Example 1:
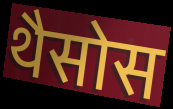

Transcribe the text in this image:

थैसोस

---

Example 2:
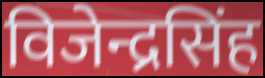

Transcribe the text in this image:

विजेन्द्रसिंह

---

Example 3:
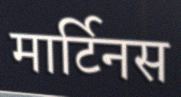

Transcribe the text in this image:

मार्टिनस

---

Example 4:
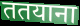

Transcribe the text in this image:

ततयाना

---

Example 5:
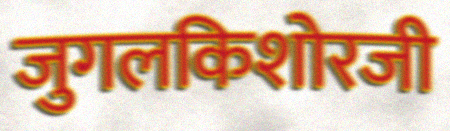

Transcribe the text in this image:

जुगलकिशोरजी